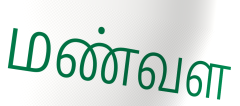
மண்வள